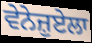
ਵੇਨੇਜ਼ੁਏਲਾ